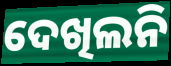
ଦେଖିଲନି